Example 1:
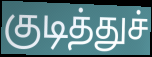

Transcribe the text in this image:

குடித்துச்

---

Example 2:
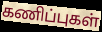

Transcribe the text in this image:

கணிப்புகள்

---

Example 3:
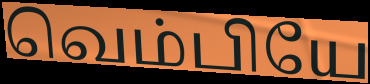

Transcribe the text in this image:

வெம்பியே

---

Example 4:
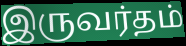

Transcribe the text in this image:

இருவர்தம்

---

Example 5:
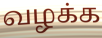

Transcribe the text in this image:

வழக்க